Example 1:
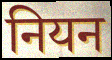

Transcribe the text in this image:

नियन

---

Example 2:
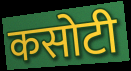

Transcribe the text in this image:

कसोटी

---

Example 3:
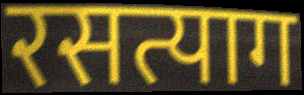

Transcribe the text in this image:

रसत्याग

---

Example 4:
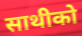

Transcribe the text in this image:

साथीको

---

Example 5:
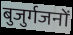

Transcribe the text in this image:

बुजुर्गजनों